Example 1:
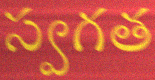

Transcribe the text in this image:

స్వగత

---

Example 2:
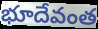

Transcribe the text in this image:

భూదేవంత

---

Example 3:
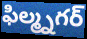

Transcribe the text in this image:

ఫిల్మ్నగర్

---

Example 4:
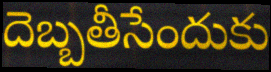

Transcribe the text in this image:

దెబ్బతీసేందుకు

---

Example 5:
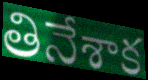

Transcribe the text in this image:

తినేశాక